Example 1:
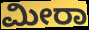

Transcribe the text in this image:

ಮೀರಾ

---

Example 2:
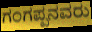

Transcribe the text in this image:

ಗಂಗಪ್ಪನವರು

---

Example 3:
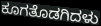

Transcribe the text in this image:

ಕೂಗತೊಡಗಿದಳು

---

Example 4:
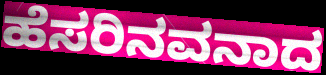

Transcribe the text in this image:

ಹೆಸರಿನವನಾದ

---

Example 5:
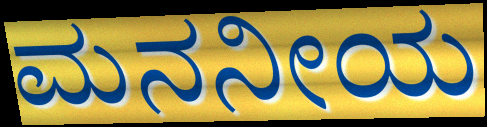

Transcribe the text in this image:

ಮನನೀಯ